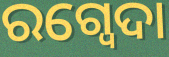
ରଗ୍ବେଦା